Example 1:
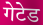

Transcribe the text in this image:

गेटेड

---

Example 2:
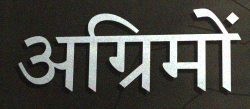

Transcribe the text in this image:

अग्रिमों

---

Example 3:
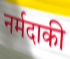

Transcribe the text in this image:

नर्मदाकी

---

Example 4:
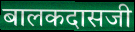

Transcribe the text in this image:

बालकदासजी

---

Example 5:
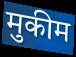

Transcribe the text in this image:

मुकीम